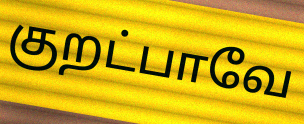
குறட்பாவே